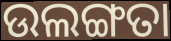
ଉଲଙ୍ଗତା